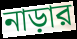
নাড়ার